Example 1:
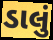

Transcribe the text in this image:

ડાલું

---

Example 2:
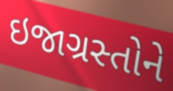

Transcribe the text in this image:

ઇજાગ્રસ્તોને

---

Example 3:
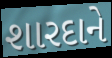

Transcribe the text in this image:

શારદાને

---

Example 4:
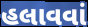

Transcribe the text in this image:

હલાવવાં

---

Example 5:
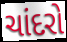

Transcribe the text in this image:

ચાંદરો